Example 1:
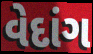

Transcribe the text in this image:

વેદાંગ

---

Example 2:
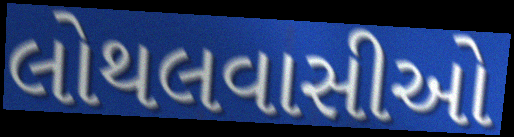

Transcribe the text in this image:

લોથલવાસીઓ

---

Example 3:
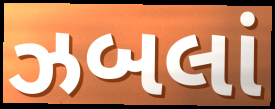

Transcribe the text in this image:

ઝબલાં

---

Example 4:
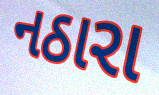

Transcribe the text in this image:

નઠારા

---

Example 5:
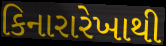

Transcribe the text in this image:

કિનારારેખાથી